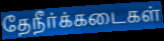
தேநீர்க்கடைகள்